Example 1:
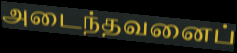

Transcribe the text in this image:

அடைந்தவனைப்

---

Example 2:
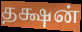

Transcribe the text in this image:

தக்ஷன்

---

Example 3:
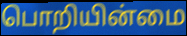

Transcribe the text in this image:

பொறியின்மை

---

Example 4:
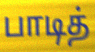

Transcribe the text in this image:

பாடித்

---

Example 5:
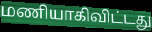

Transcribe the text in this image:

மணியாகிவிட்டது